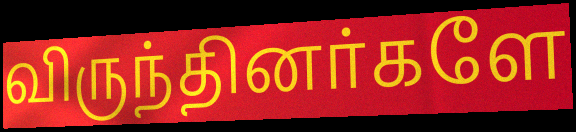
விருந்தினர்களே